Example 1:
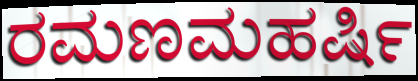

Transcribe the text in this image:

ರಮಣಮಹರ್ಷಿ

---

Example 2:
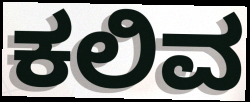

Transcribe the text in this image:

ಕಲಿವ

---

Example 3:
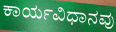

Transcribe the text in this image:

ಕಾರ್ಯವಿಧಾನವು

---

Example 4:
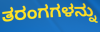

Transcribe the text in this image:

ತರಂಗಗಳನ್ನು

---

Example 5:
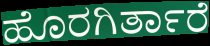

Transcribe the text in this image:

ಹೊರಗಿರ್ತಾರೆ